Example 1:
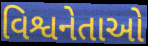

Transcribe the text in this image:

વિશ્વનેતાઓ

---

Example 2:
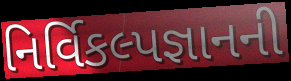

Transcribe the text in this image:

નિર્વિકલ્પજ્ઞાનની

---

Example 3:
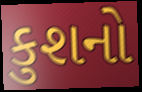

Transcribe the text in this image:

કુશનો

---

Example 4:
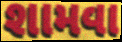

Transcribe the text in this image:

શામવા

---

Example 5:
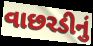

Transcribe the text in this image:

વાછરડીનું